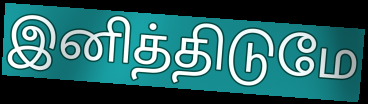
இனித்திடுமே